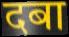
दबा